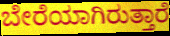
ಬೇರೆಯಾಗಿರುತ್ತಾರೆ